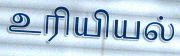
உரியியல்